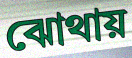
ঝোথায়